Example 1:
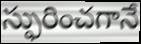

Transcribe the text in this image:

స్ఫురించగానే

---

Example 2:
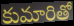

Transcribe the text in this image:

కుమారితో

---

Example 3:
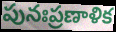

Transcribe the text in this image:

పునఃప్రణాళిక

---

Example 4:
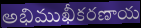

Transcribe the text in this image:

అభిముఖీకరణాయ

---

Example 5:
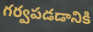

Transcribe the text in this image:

గర్వపడడానికి